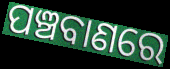
ପଞ୍ଚବାଣରେ